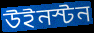
উইনস্টন